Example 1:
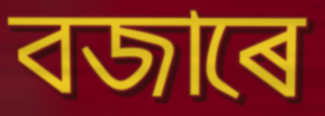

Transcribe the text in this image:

বজাৰে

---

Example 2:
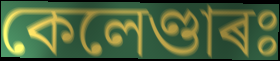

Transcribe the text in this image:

কেলেণ্ডাৰঃ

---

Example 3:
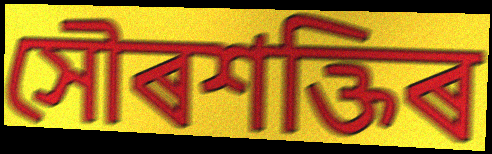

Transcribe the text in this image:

সৌৰশক্তিৰ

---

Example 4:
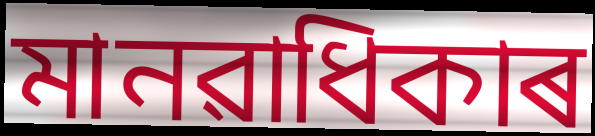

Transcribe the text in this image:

মানৱাধিকাৰ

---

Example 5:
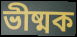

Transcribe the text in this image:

ভীষ্মক